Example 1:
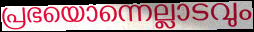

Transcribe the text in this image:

പ്രഭയൊന്നെല്ലാടവും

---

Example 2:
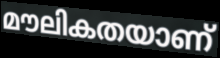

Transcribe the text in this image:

മൗലികതയാണ്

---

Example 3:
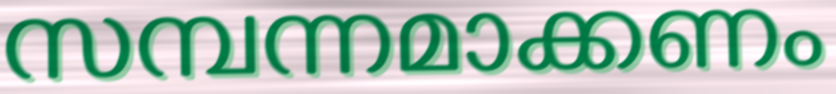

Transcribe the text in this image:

സമ്പന്നമാക്കണം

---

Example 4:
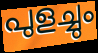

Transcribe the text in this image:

പുളച്ചും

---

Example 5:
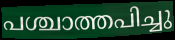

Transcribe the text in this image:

പശ്ചാത്തപിച്ചു